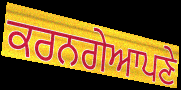
ਕਰਨਗੇਆਪਣੇ